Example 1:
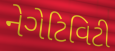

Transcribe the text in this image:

નેગેટિવિટી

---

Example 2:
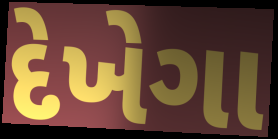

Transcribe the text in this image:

દેખેગા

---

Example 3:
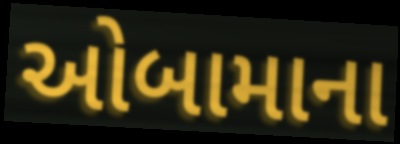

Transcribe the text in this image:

ઓબામાના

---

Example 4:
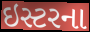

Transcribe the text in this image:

ઇસ્ટરના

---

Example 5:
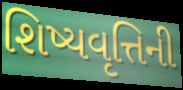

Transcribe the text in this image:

શિષ્યવૃત્તિની